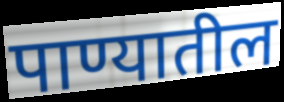
पाण्यातील